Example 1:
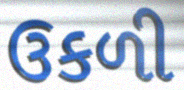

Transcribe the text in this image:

ઉકળી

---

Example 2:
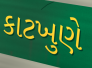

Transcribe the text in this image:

કાટખુણે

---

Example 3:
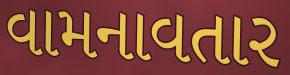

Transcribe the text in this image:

વામનાવતાર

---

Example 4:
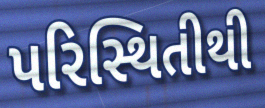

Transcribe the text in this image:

પરિસ્થિતીથી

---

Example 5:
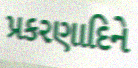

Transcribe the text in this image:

પ્રકરણાદિને